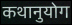
कथानुयोग